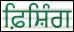
ਫ਼ਿਸ਼ਿੰਗ